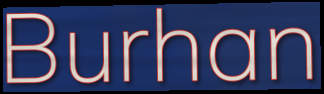
Burhan